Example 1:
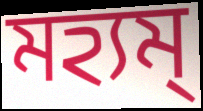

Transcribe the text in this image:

মহ্যম্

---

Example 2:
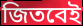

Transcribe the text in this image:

জিতবেই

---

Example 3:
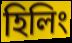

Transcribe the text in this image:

হিলিং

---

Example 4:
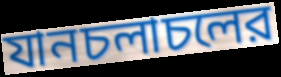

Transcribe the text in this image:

যানচলাচলের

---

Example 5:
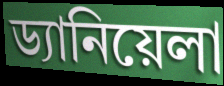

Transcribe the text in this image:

ড্যানিয়েলা